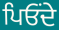
ਪਿਓਂਦੇ